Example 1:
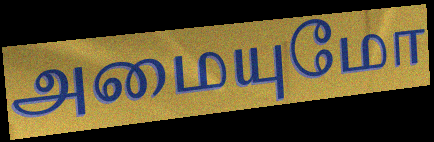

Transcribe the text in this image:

அமையுமோ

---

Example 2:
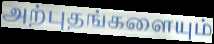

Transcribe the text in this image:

அற்புதங்களையும்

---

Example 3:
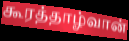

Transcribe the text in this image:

கூரத்தாழ்வான்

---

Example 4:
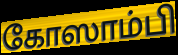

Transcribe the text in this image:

கோஸாம்பி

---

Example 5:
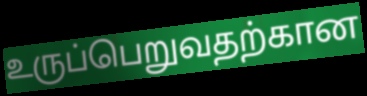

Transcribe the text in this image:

உருப்பெறுவதற்கான